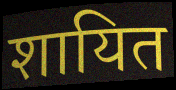
शायित